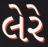
લેરે